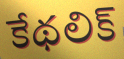
కేథలిక్